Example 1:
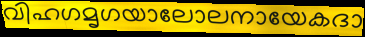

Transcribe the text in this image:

വിഹഗമൃഗയാലോലനായേകദാ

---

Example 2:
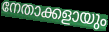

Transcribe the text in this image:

നേതാക്കളായും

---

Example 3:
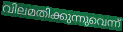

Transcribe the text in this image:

വിലമതിക്കുന്നുവെന്ന്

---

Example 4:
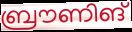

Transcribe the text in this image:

ബ്രൗണിങ്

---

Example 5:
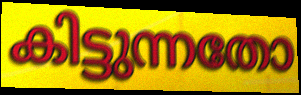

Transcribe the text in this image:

കിട്ടുന്നതോ